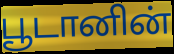
பூடானின்